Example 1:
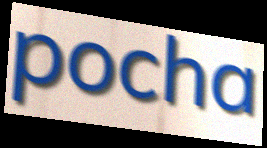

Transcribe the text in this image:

pocha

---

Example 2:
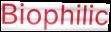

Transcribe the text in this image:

Biophilic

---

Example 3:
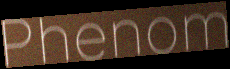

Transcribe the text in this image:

Phenom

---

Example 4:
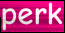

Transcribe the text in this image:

perk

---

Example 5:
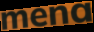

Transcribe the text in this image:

mena